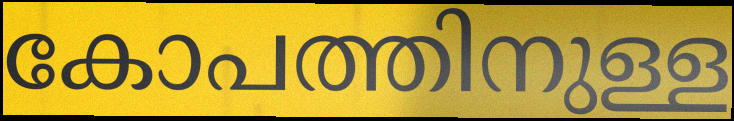
കോപത്തിനുള്ള